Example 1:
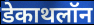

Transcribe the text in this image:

डेकाथलॉन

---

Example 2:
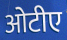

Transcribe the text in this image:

ओटीए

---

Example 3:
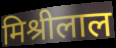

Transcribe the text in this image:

मिश्रीलाल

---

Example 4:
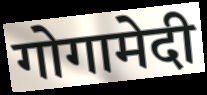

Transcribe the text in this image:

गोगामेदी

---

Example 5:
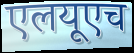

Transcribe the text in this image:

एलयूएच